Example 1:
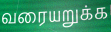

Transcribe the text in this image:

வரையறுக்க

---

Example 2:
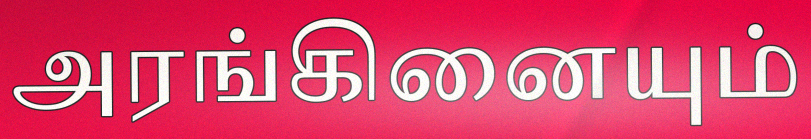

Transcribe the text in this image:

அரங்கினையும்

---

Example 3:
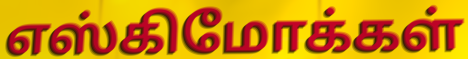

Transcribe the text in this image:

எஸ்கிமோக்கள்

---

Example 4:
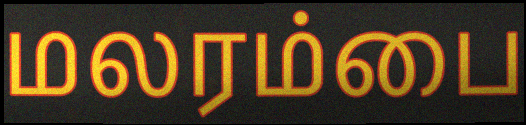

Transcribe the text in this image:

மலரம்பை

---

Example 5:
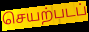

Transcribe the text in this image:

செயற்படப்